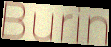
Burin